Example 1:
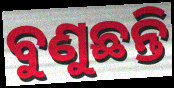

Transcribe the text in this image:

ବୁଣୁଛନ୍ତି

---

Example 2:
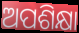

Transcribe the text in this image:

ଅପଶିକ୍ଷା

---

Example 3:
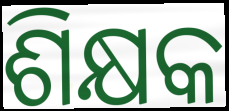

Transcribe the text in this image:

ଶିକ୍ଷକ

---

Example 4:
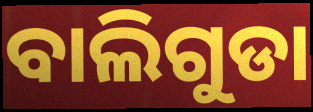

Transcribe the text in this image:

ବାଲିଗୁଡା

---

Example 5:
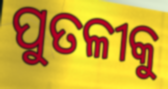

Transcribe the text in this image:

ପୁତଳୀକୁ